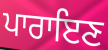
ਪਾਰਾਇਣ